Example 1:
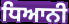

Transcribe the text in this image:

ਧਿਆਨੀ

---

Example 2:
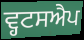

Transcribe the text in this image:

ਵ੍ਹਟਸਐਪ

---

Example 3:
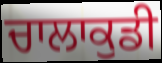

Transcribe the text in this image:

ਚਾਲਾਕੁਡੀ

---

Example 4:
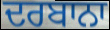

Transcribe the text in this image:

ਦਰਬਾਨਾ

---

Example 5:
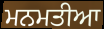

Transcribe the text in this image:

ਮਨਮਤੀਆ